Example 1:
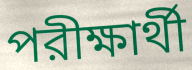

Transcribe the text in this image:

পরীক্ষার্থী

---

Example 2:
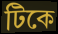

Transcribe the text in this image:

টিকে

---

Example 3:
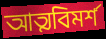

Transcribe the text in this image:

আত্মবিমর্শ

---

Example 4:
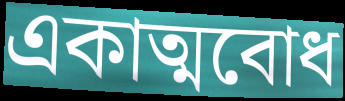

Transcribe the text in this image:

একাত্মবোধ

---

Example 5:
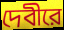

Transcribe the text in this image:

দেবীরে